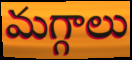
మగ్గాలు